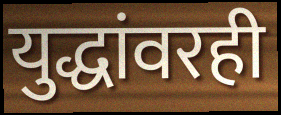
युद्धांवरही